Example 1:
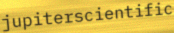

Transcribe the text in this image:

jupiterscientific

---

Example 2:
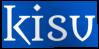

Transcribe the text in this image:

kisu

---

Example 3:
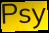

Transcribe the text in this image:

Psy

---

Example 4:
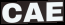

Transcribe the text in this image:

CAE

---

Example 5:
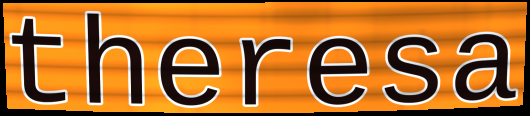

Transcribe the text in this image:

theresa